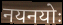
नयनयोः